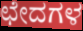
ಛೇದಗಳ